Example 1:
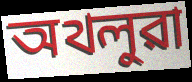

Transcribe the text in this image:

অথলুৱা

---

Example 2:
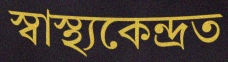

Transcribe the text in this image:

স্বাস্থ্যকেন্দ্ৰত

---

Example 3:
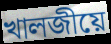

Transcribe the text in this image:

খালজীয়ে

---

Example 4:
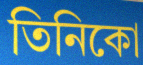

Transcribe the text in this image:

তিনিকো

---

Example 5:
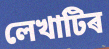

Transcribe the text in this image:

লেখাটিৰ